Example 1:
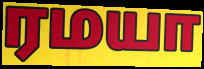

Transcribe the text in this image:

ரமயா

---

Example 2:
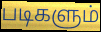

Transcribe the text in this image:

படிகளும்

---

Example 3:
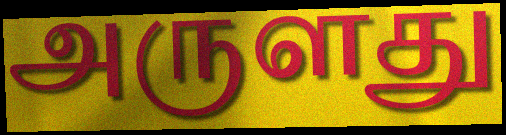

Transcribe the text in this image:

அருளது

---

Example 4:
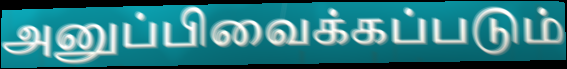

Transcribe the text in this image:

அனுப்பிவைக்கப்படும்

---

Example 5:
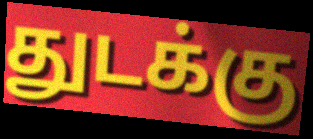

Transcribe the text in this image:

துடக்கு